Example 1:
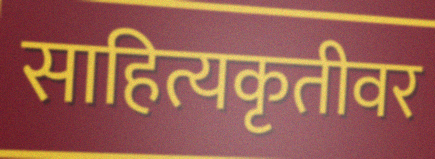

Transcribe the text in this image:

साहित्यकृतीवर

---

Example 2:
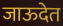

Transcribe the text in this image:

जाऊदेत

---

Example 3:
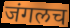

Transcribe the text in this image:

जंगलच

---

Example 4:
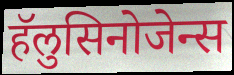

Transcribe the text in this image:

हॅलुसिनोजेन्स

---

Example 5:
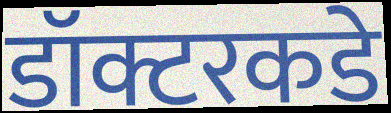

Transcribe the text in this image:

डॉक्टरकडे